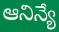
ఆనిన్యే